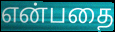
என்பதை